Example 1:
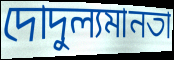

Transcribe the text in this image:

দোদুল্যমানতা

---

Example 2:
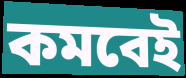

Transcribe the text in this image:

কমবেই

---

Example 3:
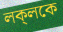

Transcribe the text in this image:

লক্‌লকে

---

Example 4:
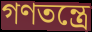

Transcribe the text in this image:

গণতন্ত্রে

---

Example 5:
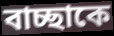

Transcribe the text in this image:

বাচ্ছাকে